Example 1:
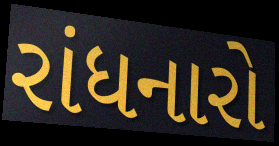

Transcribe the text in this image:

રાંધનારો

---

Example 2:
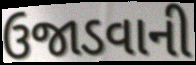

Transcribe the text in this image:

ઉજાડવાની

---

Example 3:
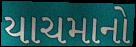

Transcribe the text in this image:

યાચમાનો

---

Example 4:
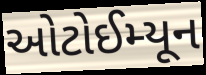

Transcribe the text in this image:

ઓટોઈમ્યૂન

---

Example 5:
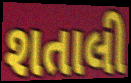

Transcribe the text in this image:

શતાલી